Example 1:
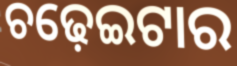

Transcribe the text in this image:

ଚଢ଼େଇଟାର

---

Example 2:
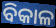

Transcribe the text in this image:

ବିକାଳ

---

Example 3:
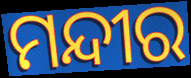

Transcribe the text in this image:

ମନ୍ଦୀର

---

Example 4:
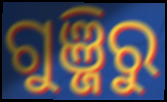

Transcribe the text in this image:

ଗୁଞ୍ଜିରୁ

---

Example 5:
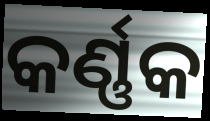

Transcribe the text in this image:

କର୍ଣ୍ଣକ